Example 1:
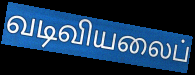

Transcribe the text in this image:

வடிவியலைப்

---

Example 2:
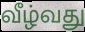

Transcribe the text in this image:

வீழ்வது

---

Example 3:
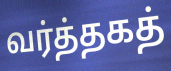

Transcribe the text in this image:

வர்த்தகத்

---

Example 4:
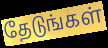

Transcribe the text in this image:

தேடுங்கள்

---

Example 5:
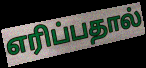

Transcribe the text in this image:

எரிப்பதால்